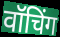
वॉचिंग